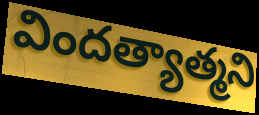
విందత్యాత్మని